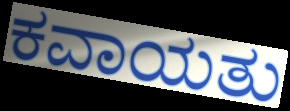
ಕವಾಯತು